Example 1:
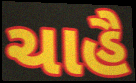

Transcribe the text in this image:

ચાહૈ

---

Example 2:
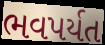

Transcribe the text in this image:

ભવપર્યત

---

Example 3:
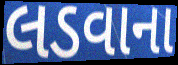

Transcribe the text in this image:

લડવાના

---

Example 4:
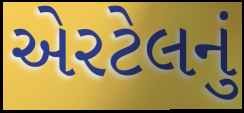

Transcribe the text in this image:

એરટેલનું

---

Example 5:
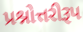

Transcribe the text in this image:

પ્રશ્નોત્તરીરૂપ